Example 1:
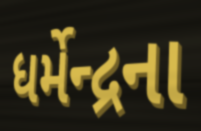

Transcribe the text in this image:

ધર્મેન્દ્રના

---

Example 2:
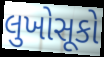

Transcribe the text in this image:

લુખોસૂકો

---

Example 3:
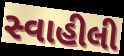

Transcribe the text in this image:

સ્વાહીલી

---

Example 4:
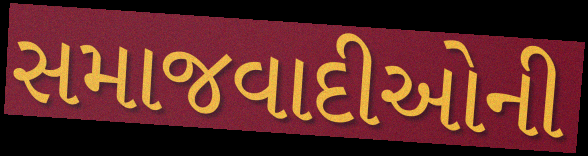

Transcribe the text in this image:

સમાજવાદીઓની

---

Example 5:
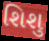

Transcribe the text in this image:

શિશુ